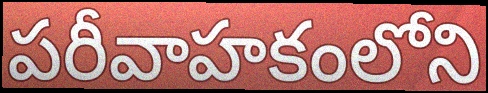
పరీవాహకంలోని